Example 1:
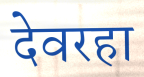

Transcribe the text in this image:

देवरहा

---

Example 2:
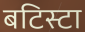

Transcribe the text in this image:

बटिस्टा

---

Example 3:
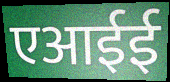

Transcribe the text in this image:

एआईई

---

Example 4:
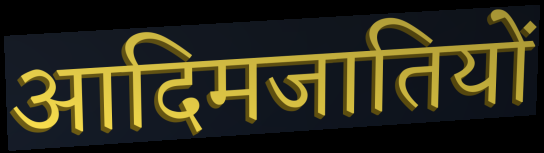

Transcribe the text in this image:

आदिमजातियों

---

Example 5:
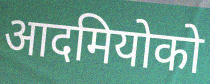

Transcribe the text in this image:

आदमियोको